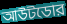
আউটডোর